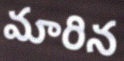
మారిన